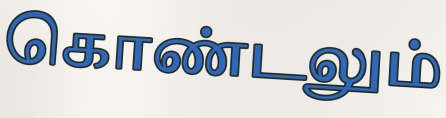
கொண்டலும்